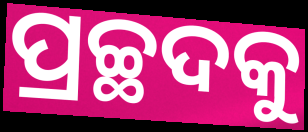
ପ୍ରଚ୍ଛଦକୁ